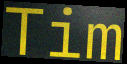
Tim